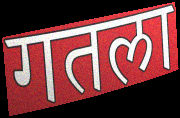
गतला